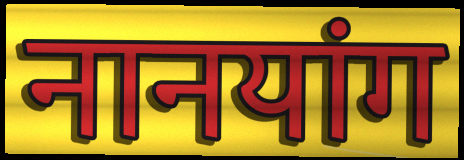
नानयांग